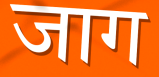
जाग